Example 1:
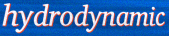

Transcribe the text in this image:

hydrodynamic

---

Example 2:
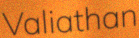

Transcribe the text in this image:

Valiathan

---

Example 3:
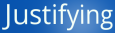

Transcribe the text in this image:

Justifying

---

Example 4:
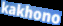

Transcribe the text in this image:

kakhono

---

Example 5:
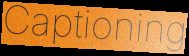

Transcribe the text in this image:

Captioning